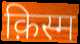
क़िस्म